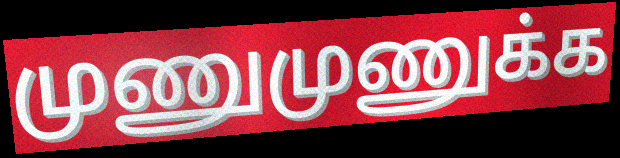
முணுமுணுக்க